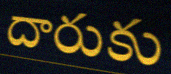
దారుకు